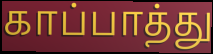
காப்பாத்து